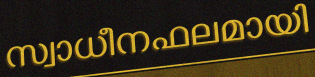
സ്വാധീനഫലമായി